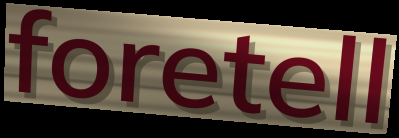
foretell